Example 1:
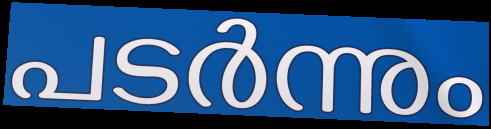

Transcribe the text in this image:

പടർന്നും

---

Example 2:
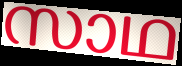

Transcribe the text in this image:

സാഥ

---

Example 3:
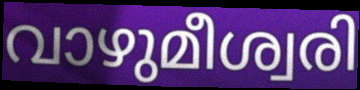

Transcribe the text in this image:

വാഴുമീശ്വരി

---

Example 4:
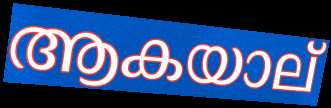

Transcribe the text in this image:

ആകയാല്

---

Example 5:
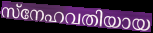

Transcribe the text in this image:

സ്നേഹവതിയായ